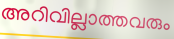
അറിവില്ലാത്തവരും